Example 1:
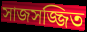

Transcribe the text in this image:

সাজসজ্জিত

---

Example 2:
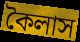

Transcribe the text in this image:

কৈলাস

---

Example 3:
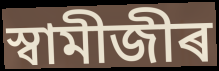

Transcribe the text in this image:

স্বামীজীৰ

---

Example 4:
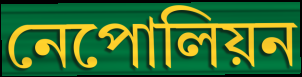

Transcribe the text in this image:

নেপোলিয়ন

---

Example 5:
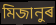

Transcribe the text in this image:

মিজানুৰ